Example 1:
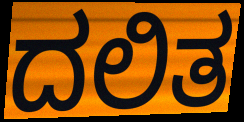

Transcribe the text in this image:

ದಲಿತ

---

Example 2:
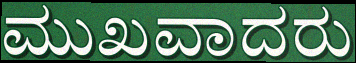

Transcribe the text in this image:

ಮುಖವಾದರು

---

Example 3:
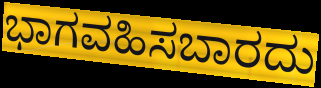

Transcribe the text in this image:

ಭಾಗವಹಿಸಬಾರದು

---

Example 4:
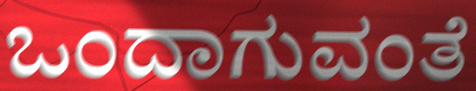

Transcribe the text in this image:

ಒಂದಾಗುವಂತೆ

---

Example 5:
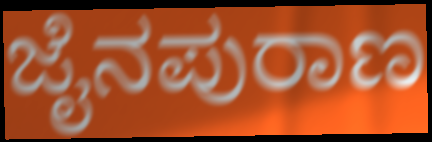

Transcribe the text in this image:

ಜೈನಪುರಾಣ